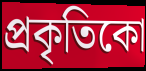
প্ৰকৃতিকো